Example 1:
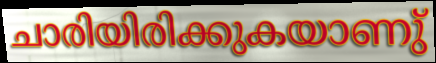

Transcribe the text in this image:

ചാരിയിരിക്കുകയാണു്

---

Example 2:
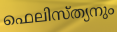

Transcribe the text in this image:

ഫെലിസ്ത്യനും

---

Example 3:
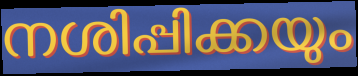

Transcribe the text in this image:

നശിപ്പിക്കയും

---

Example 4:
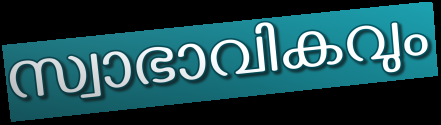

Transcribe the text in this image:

സ്വാഭാവികവും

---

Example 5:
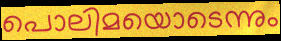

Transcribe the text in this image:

പൊലിമയൊടെന്നും